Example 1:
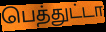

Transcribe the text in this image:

பெத்துட்டா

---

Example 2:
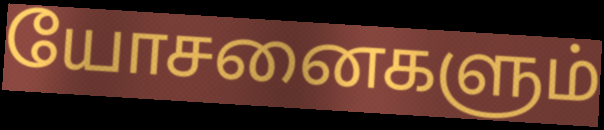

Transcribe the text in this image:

யோசனைகளும்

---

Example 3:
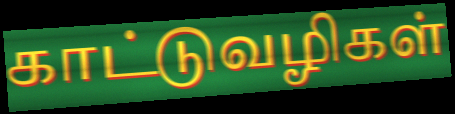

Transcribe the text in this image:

காட்டுவழிகள்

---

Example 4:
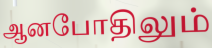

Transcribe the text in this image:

ஆனபோதிலும்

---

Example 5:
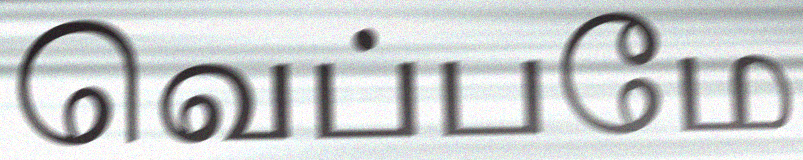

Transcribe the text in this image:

வெப்பமே